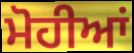
ਮੋਹੀਆਂ